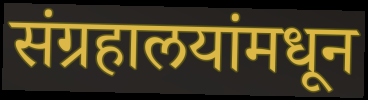
संग्रहालयांमधून